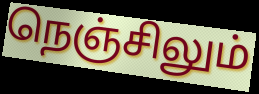
நெஞ்சிலும்